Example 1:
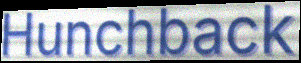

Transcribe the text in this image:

Hunchback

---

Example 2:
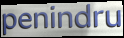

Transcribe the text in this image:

penindru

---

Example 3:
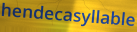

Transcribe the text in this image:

hendecasyllable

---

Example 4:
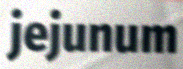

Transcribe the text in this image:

jejunum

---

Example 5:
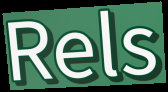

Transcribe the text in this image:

Rels